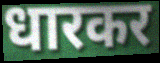
धारकर